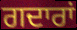
ਗਦਾਰਾਂ